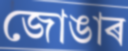
জোঙাৰ